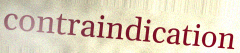
contraindication